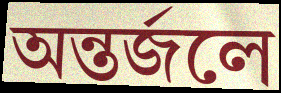
অন্তর্জলে